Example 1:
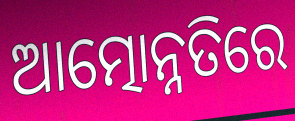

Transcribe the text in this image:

ଆତ୍ମୋନ୍ନତିରେ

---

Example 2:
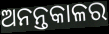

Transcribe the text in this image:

ଅନନ୍ତକାଳର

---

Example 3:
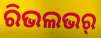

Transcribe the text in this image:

ରିଭଲଭର୍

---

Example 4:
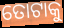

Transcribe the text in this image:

ତୋଟାକୁ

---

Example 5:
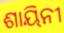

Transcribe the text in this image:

ଶାୟିନୀ